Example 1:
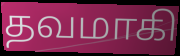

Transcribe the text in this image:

தவமாகி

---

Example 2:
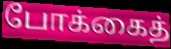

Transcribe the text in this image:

போக்கைத்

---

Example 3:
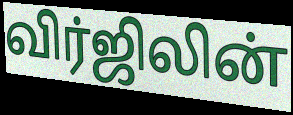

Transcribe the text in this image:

விர்ஜிலின்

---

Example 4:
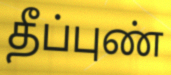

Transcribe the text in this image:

தீப்புண்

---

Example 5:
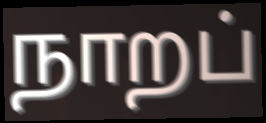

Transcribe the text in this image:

நாறப்